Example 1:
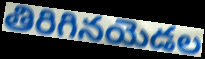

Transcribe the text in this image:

తిరిగినయెడల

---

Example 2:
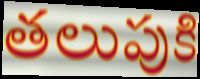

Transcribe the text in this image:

తలుపుకి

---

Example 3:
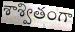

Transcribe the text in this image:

శాశ్వితంగా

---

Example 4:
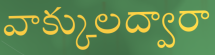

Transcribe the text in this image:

వాక్కులద్వారా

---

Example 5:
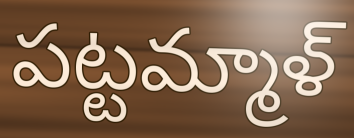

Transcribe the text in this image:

పట్టమ్మాళ్